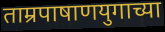
ताम्रपाषाणयुगाच्या